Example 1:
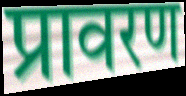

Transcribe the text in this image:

प्रावरण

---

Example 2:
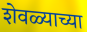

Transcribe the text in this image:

शेवळ्याच्या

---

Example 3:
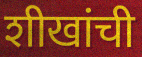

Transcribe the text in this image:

शीखांची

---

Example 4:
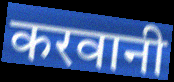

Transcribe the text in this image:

करवानी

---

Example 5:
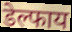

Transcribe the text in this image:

डेल्फाय